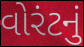
વોરંટનું